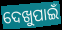
ଦେଖୁପାଇଁ